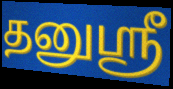
தனுஸ்ரீ